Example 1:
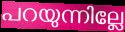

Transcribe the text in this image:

പറയുന്നില്ലേ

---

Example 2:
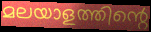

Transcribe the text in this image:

മലയാളത്തിന്റെ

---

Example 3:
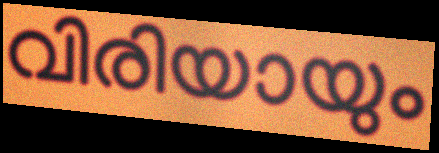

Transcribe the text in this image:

വിരിയായും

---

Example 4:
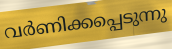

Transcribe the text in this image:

വർണിക്കപ്പെടുന്നു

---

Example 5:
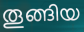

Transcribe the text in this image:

തൂങ്ങിയ